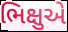
ભિક્ષુએ